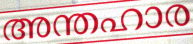
അന്തഹാര